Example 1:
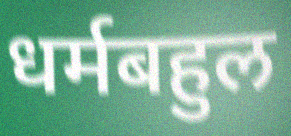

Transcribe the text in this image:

धर्मबहुल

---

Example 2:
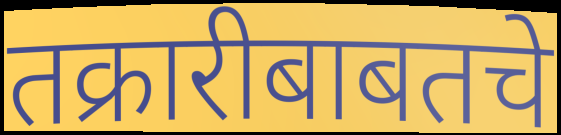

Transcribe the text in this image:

तक्रारीबाबतचे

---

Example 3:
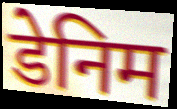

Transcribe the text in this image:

डेनिम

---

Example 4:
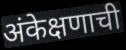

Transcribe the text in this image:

अंकेक्षणाची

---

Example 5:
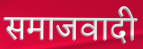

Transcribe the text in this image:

समाजवादी